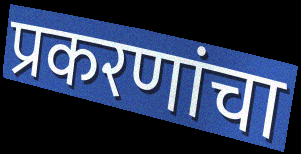
प्रकरणांचा